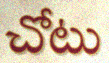
చోటు